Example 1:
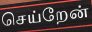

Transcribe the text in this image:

செய்றேன்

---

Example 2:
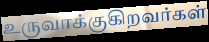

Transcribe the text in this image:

உருவாக்குகிறவர்கள்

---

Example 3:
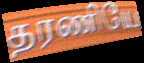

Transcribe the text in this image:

தரணியே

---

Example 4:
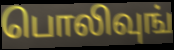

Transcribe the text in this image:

பொலிவுங்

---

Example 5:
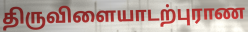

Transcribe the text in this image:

திருவிளையாடற்புராண